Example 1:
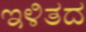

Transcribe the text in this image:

ಇಳಿತದ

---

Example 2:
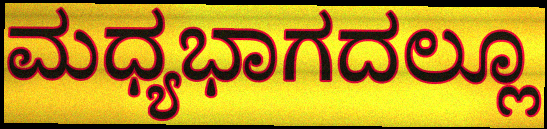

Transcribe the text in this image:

ಮಧ್ಯಭಾಗದಲ್ಲೂ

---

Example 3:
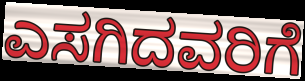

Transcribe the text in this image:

ಎಸಗಿದವರಿಗೆ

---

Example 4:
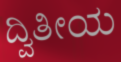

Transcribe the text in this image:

ದ್ವಿತೀಯ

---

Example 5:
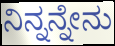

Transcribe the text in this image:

ನಿನ್ನನ್ನೇನು